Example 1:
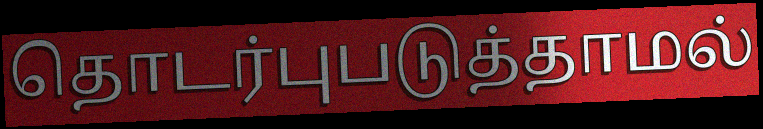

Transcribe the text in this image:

தொடர்புபடுத்தாமல்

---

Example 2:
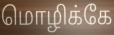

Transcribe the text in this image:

மொழிக்கே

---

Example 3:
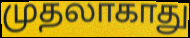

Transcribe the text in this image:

முதலாகாது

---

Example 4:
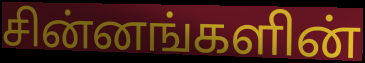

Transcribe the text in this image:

சின்னங்களின்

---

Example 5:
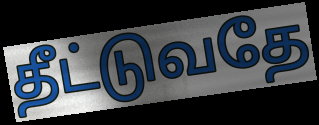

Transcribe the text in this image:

தீட்டுவதே